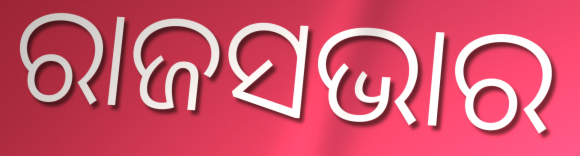
ରାଜସଭାର